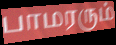
பாமரரும்